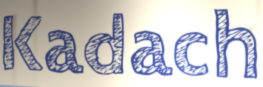
Kadach